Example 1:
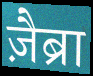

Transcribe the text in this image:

ज़ैब्रा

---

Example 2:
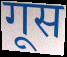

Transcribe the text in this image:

गूस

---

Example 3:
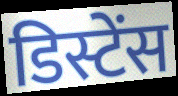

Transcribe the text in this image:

डिस्टेंस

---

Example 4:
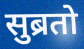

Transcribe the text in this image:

सुब्रतो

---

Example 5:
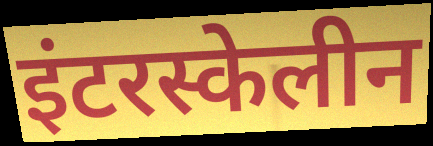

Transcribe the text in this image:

इंटरस्केलीन